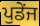
ਪੁਡੇਂਜ